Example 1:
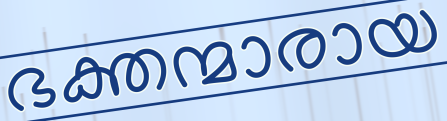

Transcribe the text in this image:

ഭക്തന്മാരായ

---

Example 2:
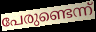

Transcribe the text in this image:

പേരുണ്ടെന്ന്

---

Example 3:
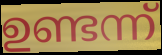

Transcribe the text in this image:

ഉണ്ടന്ന്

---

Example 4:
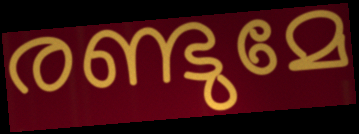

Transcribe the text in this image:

രണ്ടുമേ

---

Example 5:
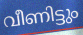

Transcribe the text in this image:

വീണിട്ടും